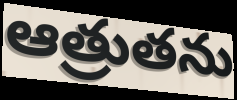
ఆత్రుతను